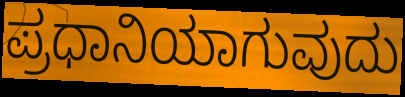
ಪ್ರಧಾನಿಯಾಗುವುದು